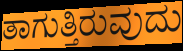
ತಾಗುತ್ತಿರುವುದು